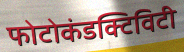
फोटोकंडक्टिविटी